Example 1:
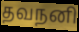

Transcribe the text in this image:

தவநனி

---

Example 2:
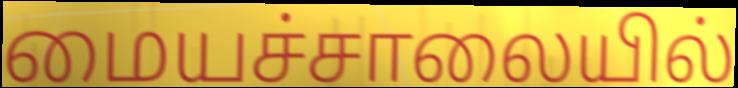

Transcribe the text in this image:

மையச்சாலையில்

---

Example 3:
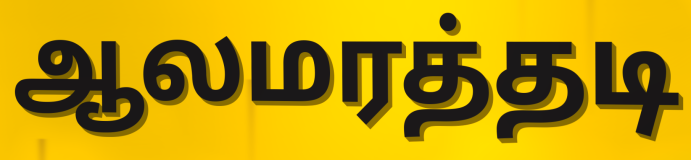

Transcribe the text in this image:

ஆலமரத்தடி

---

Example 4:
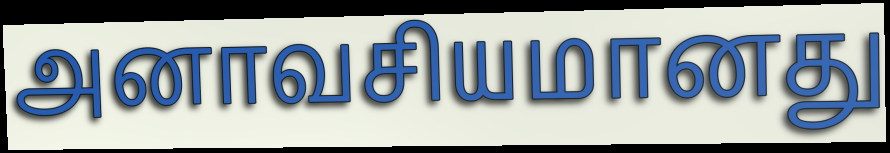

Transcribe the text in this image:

அனாவசியமானது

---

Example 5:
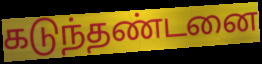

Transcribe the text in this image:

கடுந்தண்டனை